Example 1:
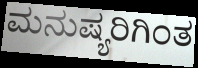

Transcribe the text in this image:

ಮನುಷ್ಯರಿಗಿಂತ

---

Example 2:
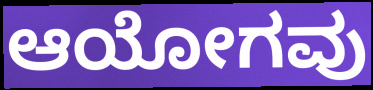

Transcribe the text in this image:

ಆಯೋಗವು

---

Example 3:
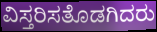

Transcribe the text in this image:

ವಿಸ್ತರಿಸತೊಡಗಿದರು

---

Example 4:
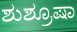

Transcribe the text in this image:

ಶುಶ್ರೂಷಾ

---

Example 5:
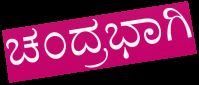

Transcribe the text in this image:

ಚಂದ್ರಭಾಗಿ